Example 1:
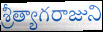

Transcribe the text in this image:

శ్రీత్యాగరాజుని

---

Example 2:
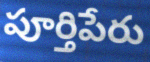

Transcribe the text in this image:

పూర్తిపేరు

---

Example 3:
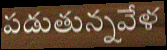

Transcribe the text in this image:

పడుతున్నవేళ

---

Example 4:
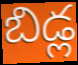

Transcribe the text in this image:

బిడ్ల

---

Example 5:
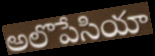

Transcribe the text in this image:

అలొపేసియా